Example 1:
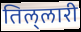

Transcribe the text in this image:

तिल्लारी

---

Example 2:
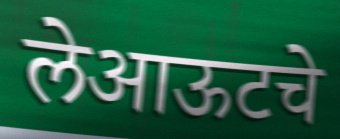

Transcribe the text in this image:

लेआऊटचे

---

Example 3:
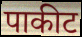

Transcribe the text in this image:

पाकीट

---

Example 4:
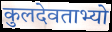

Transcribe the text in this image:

कुलदेवताभ्यो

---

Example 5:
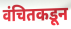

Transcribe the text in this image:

वंचितकडून